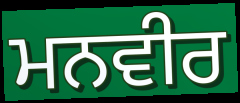
ਮਨਵੀਰ